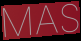
MAS